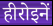
हीरोइनें